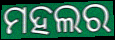
ମହଲର